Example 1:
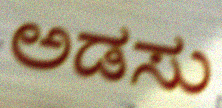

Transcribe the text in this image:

ಅಡಸು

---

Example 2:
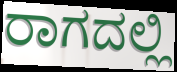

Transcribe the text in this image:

ರಾಗದಲ್ಲಿ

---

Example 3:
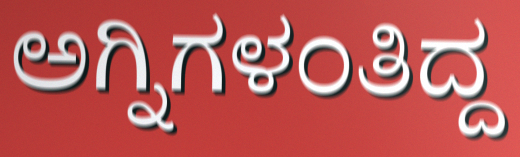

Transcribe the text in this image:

ಅಗ್ನಿಗಳಂತಿದ್ದ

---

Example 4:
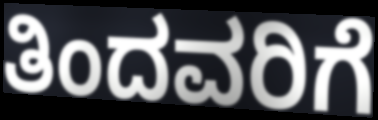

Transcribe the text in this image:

ತಿಂದವರಿಗೆ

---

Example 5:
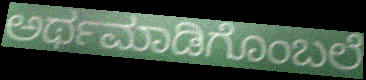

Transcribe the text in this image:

ಅರ್ಥಮಾಡಿಗೊಂಬಲೆ